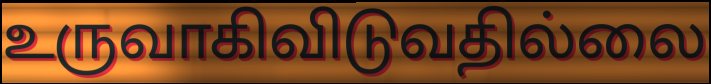
உருவாகிவிடுவதில்லை